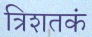
त्रिशतकं